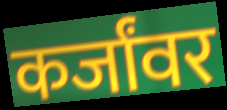
कर्जांवर